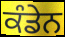
ਕੰਡੇਨ